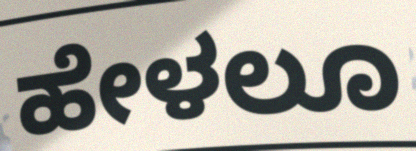
ಹೇಳಲೂ